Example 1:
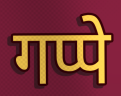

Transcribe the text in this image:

गप्पे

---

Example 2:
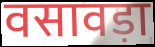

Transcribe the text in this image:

वसावड़ा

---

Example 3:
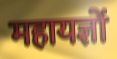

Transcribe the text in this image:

महायज्ञों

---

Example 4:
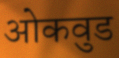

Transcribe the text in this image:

ओकवुड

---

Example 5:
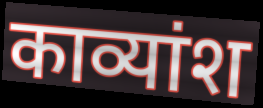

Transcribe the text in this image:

काव्यांश